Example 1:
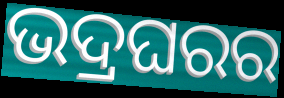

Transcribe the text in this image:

ଭଦ୍ରଘରର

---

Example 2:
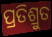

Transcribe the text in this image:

ପ୍ରତିଶ୍ରୁତ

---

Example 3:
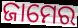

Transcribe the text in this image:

ଜାମେର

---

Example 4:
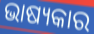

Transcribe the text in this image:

ଭାଷ୍ୟକାର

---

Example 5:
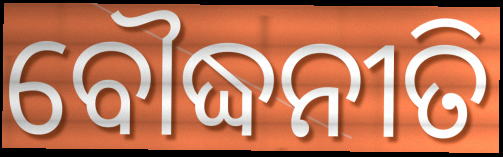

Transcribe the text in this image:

ବୌଦ୍ଧନୀତି